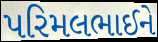
પરિમલભાઈને